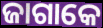
ଜାଗାକେ